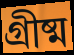
গ্রীষ্ম